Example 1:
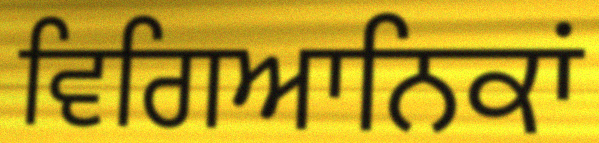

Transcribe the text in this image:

ਵਿਗਿਆਨਿਕਾਂ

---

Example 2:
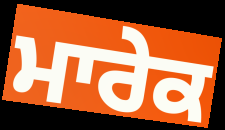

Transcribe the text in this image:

ਮਾਰੇਕ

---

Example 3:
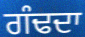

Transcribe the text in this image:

ਗੰਢਦਾ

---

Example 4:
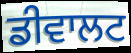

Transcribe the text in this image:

ਡੀਵਾਲਟ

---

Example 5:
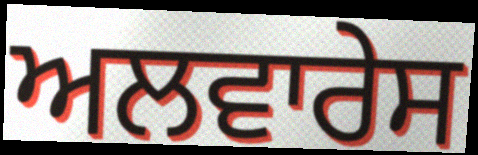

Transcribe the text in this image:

ਅਲਵਾਰੇਸ